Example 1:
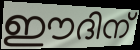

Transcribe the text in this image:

ഈദിന്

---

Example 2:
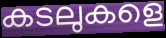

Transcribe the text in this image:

കടലുകളെ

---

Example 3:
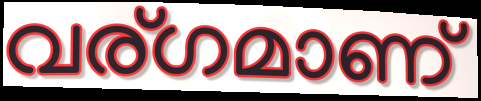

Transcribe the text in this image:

വര്ഗമാണ്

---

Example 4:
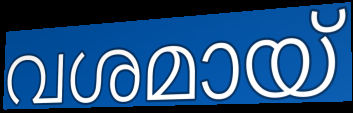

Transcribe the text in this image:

വശമായ്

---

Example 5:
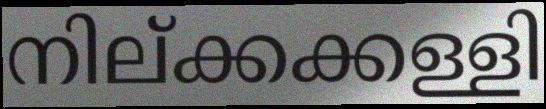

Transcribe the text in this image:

നില്ക്കക്കള്ളി